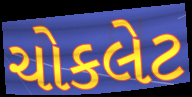
ચોકલેટ